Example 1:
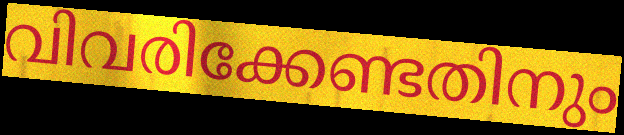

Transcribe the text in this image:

വിവരിക്കേണ്ടതിനും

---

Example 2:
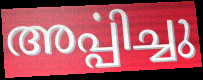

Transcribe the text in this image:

അൎപ്പിച്ചു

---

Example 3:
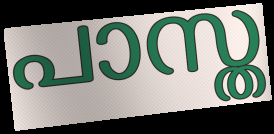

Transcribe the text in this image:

പാസ്ത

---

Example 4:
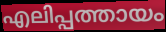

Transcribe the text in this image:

എലിപ്പത്തായം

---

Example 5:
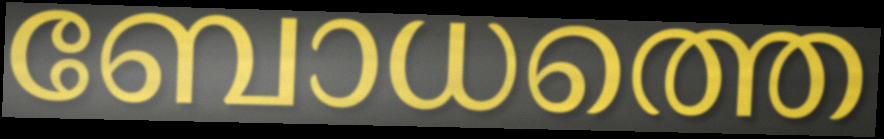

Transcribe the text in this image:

ബോധത്തെ